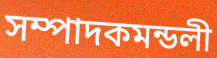
সম্পাদকমন্ডলী